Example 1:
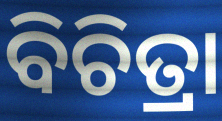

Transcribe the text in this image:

ବିଚିତ୍ରା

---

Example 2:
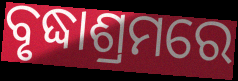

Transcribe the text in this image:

ବୃଦ୍ଧାଶ୍ରମରେ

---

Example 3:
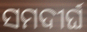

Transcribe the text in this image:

ସମଦୀର୍ଘ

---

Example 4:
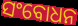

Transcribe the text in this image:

ସଂବୋଧନ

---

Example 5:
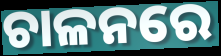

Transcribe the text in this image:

ଚାଳନରେ